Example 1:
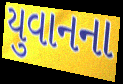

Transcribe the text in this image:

યુવાનના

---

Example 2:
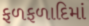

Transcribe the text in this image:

ફળફળાદિમાં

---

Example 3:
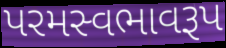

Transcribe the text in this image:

પરમસ્વભાવરૂપ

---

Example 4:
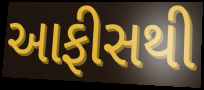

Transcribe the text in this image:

આફીસથી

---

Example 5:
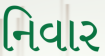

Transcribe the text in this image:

નિવાર